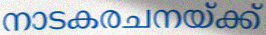
നാടകരചനയ്ക്ക്